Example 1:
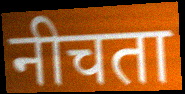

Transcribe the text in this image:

नीचता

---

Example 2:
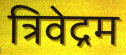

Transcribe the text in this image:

त्रिवेद्रम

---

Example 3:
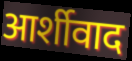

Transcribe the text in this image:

आर्शीवाद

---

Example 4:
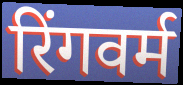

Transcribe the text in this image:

रिंगवर्म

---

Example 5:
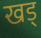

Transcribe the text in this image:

खड्